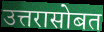
उत्तरासोबत